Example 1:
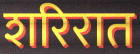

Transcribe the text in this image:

शरिरात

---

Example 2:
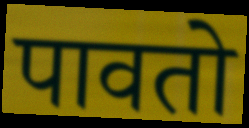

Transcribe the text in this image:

पावतो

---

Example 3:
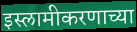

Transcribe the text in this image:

इस्लामीकरणाच्या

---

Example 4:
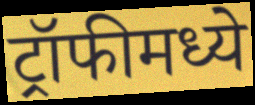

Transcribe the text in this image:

ट्रॉफीमध्ये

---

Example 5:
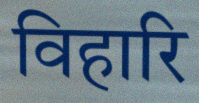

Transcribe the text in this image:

विहारि